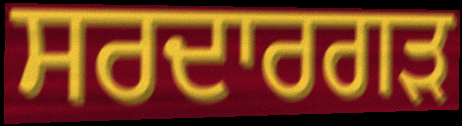
ਸਰਦਾਰਗੜ